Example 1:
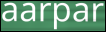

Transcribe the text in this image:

aarpar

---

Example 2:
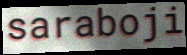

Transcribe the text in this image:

saraboji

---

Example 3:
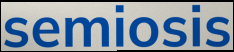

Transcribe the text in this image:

semiosis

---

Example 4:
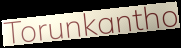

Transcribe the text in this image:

Torunkantho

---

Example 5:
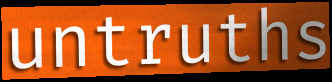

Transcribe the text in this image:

untruths